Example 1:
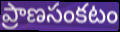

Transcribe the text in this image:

ప్రాణసంకటం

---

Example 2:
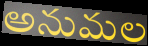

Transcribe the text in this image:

అనుమల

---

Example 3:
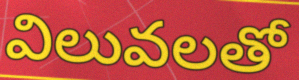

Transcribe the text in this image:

విలువలతో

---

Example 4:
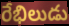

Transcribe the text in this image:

రేభిలుడు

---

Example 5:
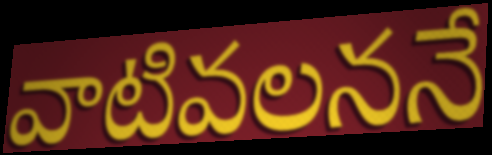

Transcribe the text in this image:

వాటివలననే